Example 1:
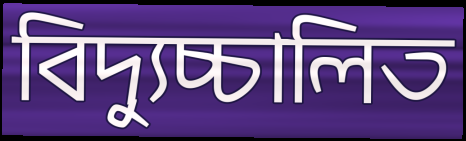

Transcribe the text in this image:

বিদ্যুচ্চালিত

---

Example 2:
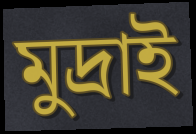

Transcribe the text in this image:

মুদ্রাই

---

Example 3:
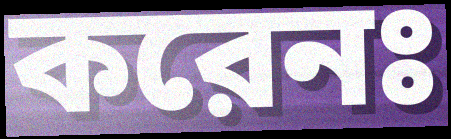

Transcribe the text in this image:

করেনঃ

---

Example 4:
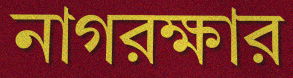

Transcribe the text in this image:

নাগরক্ষার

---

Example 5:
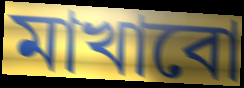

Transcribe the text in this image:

মাখাবো